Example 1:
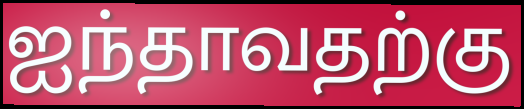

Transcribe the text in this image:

ஐந்தாவதற்கு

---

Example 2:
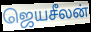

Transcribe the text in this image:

ஜெயசீலன்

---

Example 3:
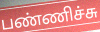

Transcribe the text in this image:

பண்ணிச்சு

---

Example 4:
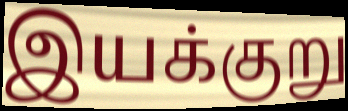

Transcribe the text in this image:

இயக்குறு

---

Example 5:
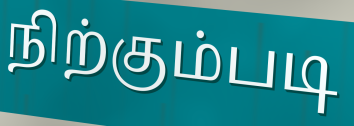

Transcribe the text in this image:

நிற்கும்படி